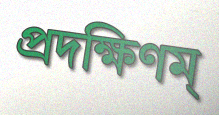
প্রদক্ষিণম্